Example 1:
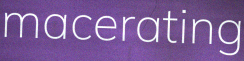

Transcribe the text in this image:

macerating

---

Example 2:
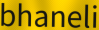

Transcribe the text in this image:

bhaneli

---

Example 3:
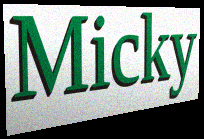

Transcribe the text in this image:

Micky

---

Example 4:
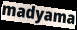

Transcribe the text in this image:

madyama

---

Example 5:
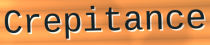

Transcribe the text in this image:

Crepitance